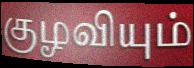
குழவியும்